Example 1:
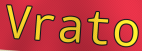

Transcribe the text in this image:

Vrato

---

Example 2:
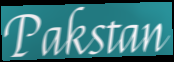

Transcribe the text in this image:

Pakstan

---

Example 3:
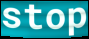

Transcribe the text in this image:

stop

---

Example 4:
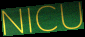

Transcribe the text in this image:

NICU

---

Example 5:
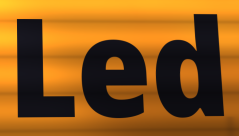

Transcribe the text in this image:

Led